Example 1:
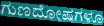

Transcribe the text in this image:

ಗುಣದೋಷಗಳೂ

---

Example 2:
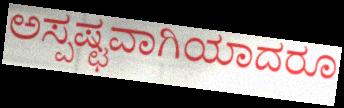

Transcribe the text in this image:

ಅಸ್ಪಷ್ಟವಾಗಿಯಾದರೂ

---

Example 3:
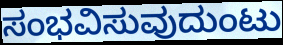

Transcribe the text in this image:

ಸಂಭವಿಸುವುದುಂಟು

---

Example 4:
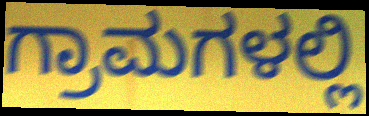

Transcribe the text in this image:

ಗ್ರಾಮಗಳಲ್ಲಿ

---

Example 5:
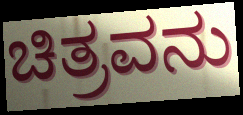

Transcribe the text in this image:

ಚಿತ್ರವನು